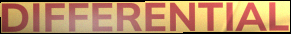
DIFFERENTIAL